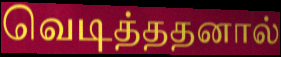
வெடித்ததனால்